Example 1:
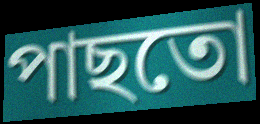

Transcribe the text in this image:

পাছতো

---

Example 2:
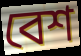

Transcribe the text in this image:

বেশ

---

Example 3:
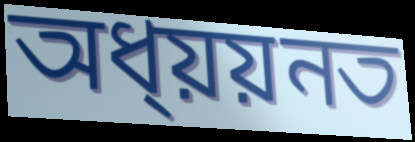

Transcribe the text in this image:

অধ্য়য়নত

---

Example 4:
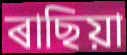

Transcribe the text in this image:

ৰাছিয়া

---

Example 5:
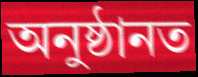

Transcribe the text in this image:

অনুষ্ঠানত